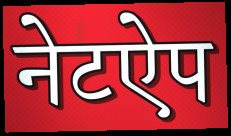
नेटऐप